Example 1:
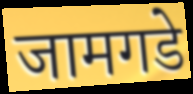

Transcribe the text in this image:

जामगडे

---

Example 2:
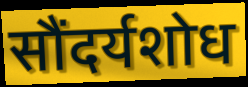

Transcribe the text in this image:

सौंदर्यशोध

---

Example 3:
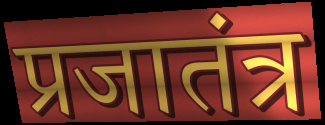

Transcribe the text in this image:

प्रजातंत्र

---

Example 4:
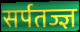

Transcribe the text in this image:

सर्पतज्ज्ञ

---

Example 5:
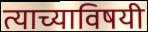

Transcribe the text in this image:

त्याच्याविषयी